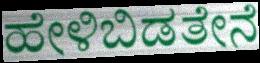
ಹೇಳಿಬಿಡತೇನೆ